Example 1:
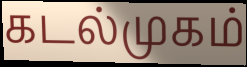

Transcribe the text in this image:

கடல்முகம்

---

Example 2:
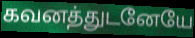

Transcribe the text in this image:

கவனத்துடனேயே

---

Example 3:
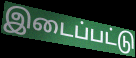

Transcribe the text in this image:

இடைப்பட்டு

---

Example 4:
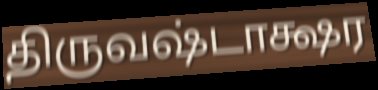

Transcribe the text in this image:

திருவஷ்டாக்ஷர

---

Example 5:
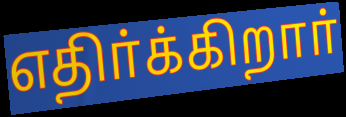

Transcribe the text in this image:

எதிர்க்கிறார்